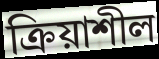
ক্ৰিয়াশীল